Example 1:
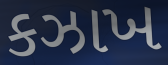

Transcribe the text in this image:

કઝાખ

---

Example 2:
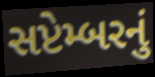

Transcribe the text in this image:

સપ્ટેમ્બરનું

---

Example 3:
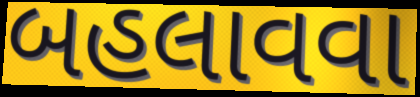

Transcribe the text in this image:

બહલાવવા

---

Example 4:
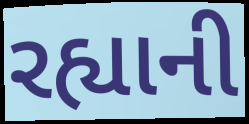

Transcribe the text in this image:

રહ્યાની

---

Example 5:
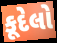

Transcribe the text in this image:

કૂદેલો